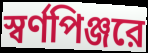
স্বর্ণপিঞ্জরে